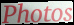
Photos